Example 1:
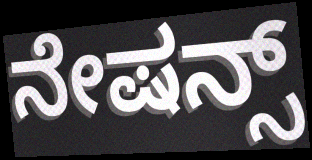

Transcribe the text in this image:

ನೇಷನ್ಸ್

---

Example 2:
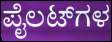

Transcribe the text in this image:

ಪೈಲಟ್‌ಗಳ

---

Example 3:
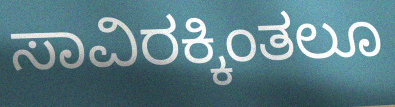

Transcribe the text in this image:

ಸಾವಿರಕ್ಕಿಂತಲೂ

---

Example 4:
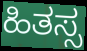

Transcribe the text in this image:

ಹಿತಸ್ಸ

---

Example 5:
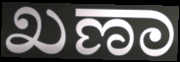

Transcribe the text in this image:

ಖಣಾ